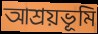
আশ্রয়ভূমি